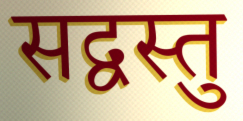
सद्वस्तु